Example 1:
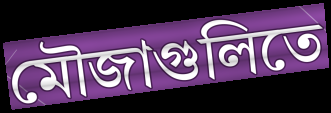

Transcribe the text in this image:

মৌজাগুলিতে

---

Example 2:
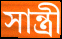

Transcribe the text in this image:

সান্ত্রী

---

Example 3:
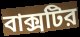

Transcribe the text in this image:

বাক্সটির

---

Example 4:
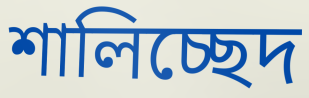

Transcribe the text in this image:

শালিচ্ছেদ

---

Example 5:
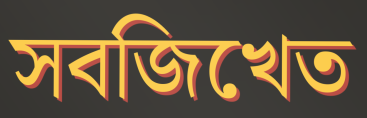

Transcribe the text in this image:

সবজিখেত